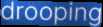
drooping